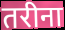
तरीना